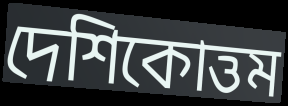
দেশিকোত্তম